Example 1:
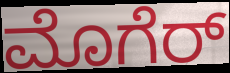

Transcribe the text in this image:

ಮೊಗೆರ್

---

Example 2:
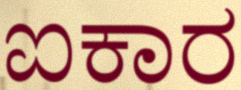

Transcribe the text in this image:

ಐಕಾರ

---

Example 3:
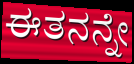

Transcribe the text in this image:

ಈತನನ್ನೇ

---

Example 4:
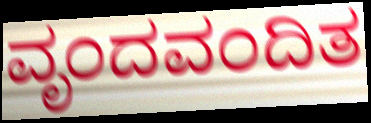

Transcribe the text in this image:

ವೃಂದವಂದಿತ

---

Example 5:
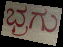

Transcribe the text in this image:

ಭ್ರಗು